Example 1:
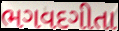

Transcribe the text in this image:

ભગવદગીતા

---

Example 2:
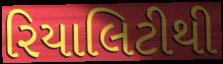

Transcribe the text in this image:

રિયાલિટીથી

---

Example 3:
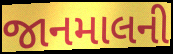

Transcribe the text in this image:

જાનમાલની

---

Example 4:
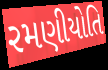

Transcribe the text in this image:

રમણીયોતિ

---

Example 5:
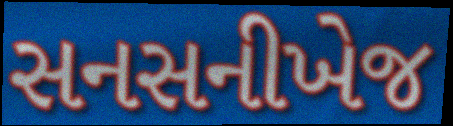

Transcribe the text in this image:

સનસનીખેજ